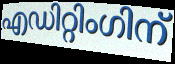
എഡിറ്റിംഗിന്